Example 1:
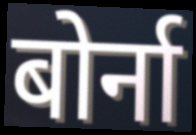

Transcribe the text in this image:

बोर्ना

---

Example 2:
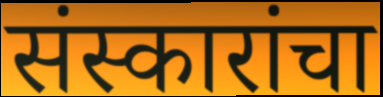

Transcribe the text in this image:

संस्कारांचा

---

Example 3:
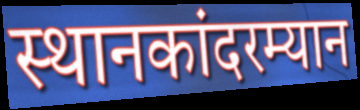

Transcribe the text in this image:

स्थानकांदरम्यान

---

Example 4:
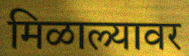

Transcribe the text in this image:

मिळाल्यावर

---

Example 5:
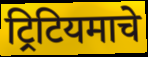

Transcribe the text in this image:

ट्रिटियमाचे